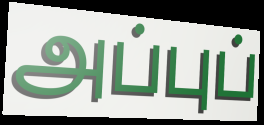
அப்புப்